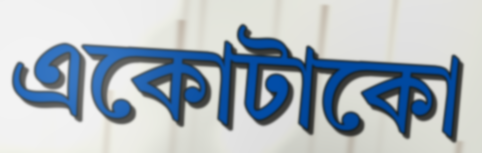
একোটাকো